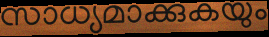
സാധ്യമാക്കുകയും